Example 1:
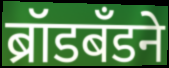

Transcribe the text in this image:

ब्रॉडबँडने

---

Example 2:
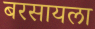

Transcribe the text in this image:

बरसायला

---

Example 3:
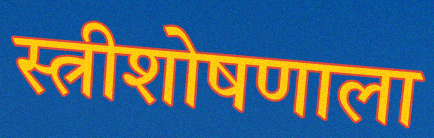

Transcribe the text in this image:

स्त्रीशोषणाला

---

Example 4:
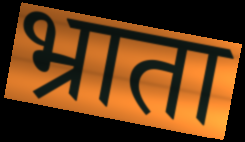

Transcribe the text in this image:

भ्राता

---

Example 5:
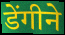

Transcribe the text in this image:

डेंगीने